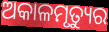
ଅକାଳମୃତ୍ୟୁର